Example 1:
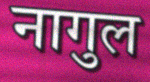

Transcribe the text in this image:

नागुल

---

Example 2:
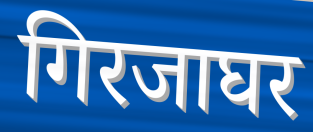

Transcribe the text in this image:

गिरजाघर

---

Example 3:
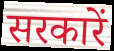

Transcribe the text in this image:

सरकारें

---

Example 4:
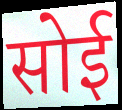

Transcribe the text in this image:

सोई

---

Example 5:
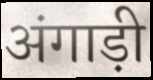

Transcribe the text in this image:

अंगाड़ी